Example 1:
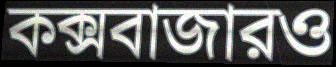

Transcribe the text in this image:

কক্সবাজারও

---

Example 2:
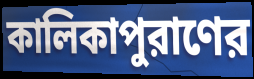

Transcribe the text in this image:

কালিকাপুরাণের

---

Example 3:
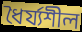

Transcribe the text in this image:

ধৈর্য্যশীল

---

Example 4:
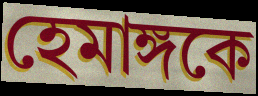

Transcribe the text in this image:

হেমাঙ্গকে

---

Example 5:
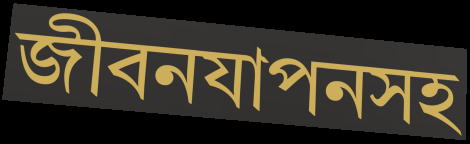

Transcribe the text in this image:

জীবনযাপনসহ